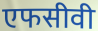
एफसीवी